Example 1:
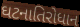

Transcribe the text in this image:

ઘટનાતિરોધાન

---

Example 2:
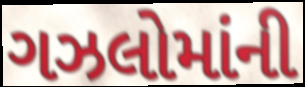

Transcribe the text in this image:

ગઝલોમાંની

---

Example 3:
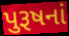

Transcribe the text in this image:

પુરૂષનાં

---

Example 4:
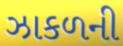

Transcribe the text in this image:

ઝાકળની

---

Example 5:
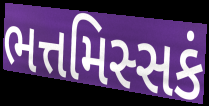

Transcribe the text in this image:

ભત્તમિસ્સકં